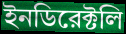
ইনডিরেক্টলি